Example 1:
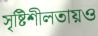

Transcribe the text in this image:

সৃষ্টিশীলতায়ও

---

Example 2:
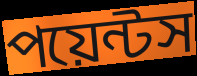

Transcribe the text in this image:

পয়েন্টস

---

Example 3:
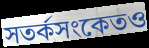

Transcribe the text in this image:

সতর্কসংকেতও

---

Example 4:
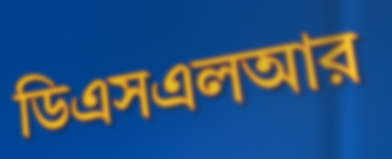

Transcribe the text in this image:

ডিএসএলআর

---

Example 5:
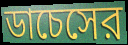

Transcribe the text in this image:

ডাচেসের